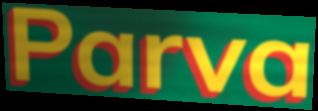
Parva